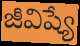
జీవిష్యే